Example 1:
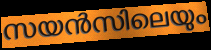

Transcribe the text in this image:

സയൻസിലെയും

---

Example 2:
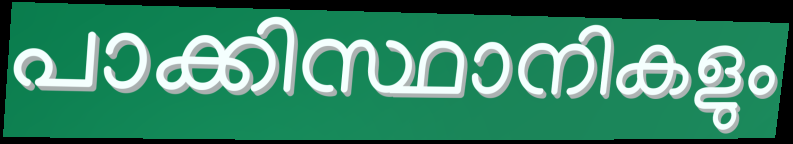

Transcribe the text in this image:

പാക്കിസ്ഥാനികളും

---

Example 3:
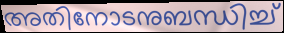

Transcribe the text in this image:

അതിനോടനുബന്ധിച്ച്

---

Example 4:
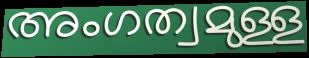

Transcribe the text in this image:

അംഗത്വമുള്ള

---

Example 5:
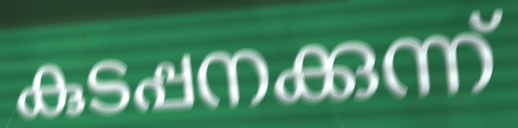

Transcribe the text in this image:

കുടപ്പനക്കുന്ന്